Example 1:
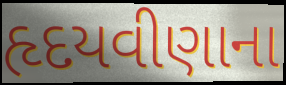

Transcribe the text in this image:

હૃદયવીણાના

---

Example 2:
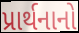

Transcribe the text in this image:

પ્રાર્થનાનો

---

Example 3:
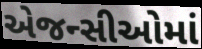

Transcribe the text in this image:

એજન્સીઓમાં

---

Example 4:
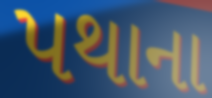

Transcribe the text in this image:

પથાના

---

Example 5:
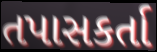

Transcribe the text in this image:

તપાસકર્તા